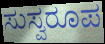
ಸುಸ್ವರೂಪ